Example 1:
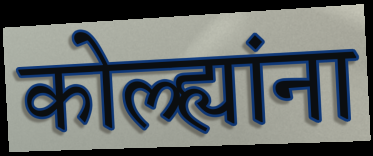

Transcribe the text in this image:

कोल्ह्यांना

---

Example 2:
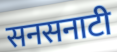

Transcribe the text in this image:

सनसनाटी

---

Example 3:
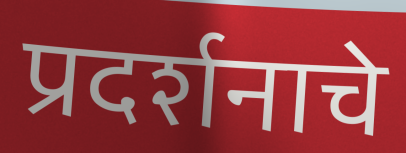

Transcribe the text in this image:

प्रदर्शनाचे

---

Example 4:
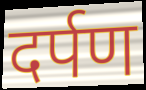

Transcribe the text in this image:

दर्पण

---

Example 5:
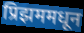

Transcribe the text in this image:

प्रिझममधून